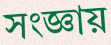
সংজ্ঞায়